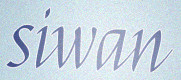
siwan